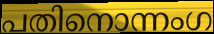
പതിനൊന്നംഗ